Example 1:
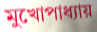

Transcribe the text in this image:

মুখোপাধ্যায়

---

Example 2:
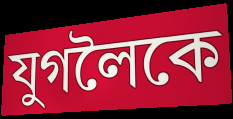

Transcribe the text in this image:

যুগলৈকে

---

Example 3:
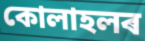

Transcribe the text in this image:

কোলাহলৰ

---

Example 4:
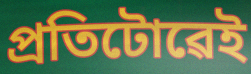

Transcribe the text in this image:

প্ৰতিটোৱেই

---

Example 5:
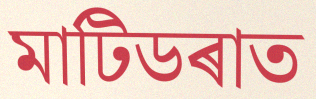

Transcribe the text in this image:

মাটিডৰাত